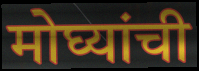
मोघ्यांची